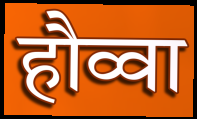
हौव्वा